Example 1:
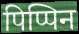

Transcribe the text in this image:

पिप्पिन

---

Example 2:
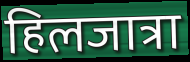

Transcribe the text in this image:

हिलजात्रा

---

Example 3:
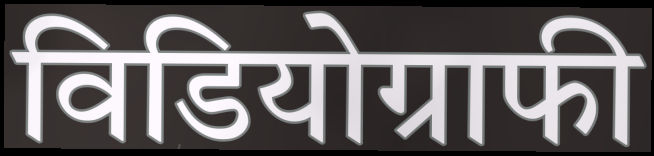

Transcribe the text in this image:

विडियोग्राफी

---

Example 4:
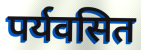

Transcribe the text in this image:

पर्यवसित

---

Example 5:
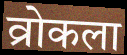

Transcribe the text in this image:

व्रोकला